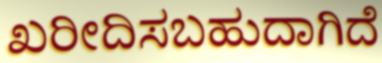
ಖರೀದಿಸಬಹುದಾಗಿದೆ